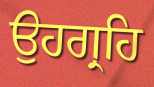
ਉਹਗ੍ਰਹਿ